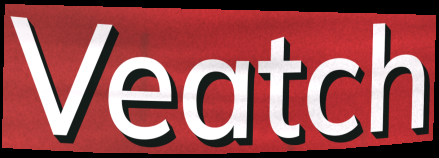
Veatch